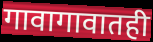
गावागावातही